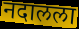
नदालला